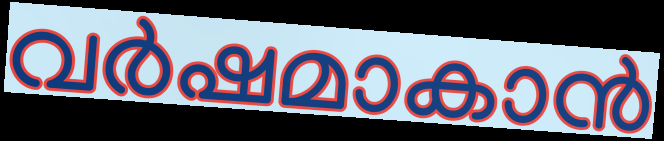
വർഷമാകാൻ